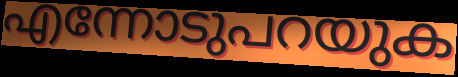
എന്നോടുപറയുക